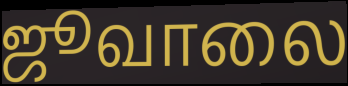
ஜூவாலை